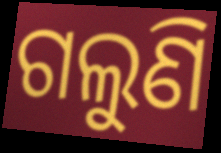
ଗଲୁଣି